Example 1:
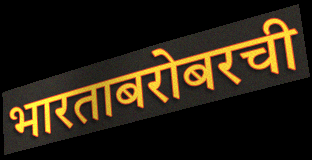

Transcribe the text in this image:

भारताबरोबरची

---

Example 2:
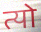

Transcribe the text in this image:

त्यो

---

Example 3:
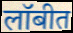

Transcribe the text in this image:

लॉबीत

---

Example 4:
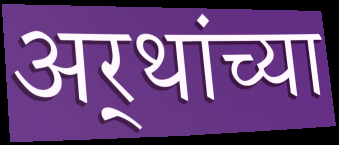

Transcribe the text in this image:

अर्थांच्या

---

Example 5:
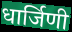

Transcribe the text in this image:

धार्जिणी